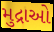
મુદ્રાઓ